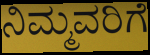
ನಿಮ್ಮವರಿಗೆ